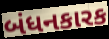
બંધનકારક